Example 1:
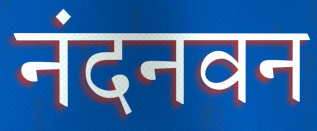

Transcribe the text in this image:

नंदनवन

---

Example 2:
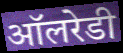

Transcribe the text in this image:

ऑलरेडी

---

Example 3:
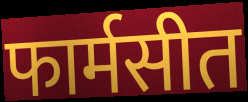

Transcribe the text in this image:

फार्मसीत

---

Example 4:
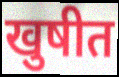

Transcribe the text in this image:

खुषीत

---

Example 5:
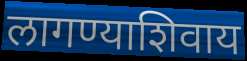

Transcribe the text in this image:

लागण्याशिवाय